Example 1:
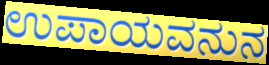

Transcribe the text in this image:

ಉಪಾಯವನುನ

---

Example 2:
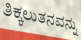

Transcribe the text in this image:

ತಿಕ್ಕಲುತನವನ್ನು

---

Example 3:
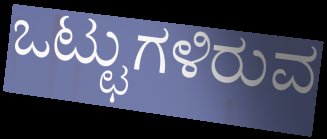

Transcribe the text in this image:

ಒಟ್ಟುಗಳಿರುವ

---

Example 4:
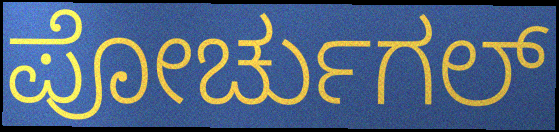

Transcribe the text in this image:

ಪೋರ್ಚುಗಲ್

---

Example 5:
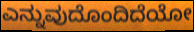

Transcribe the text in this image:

ಎನ್ನುವುದೊಂದಿದೆಯೋ